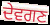
ਦੇਵਗਣ